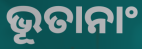
ଭୂତାନାଂ